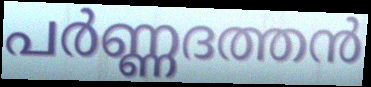
പർണ്ണദത്തൻ